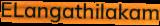
ELangathilakam